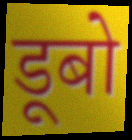
डूबो